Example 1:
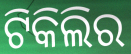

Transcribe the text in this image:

ଟିକିଲିର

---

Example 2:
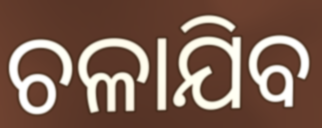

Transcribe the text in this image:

ଚଳାଯିବ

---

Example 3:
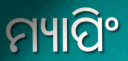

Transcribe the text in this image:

ମ୍ୟାପିଂ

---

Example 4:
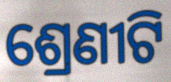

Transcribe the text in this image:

ଶ୍ରେଣୀଟି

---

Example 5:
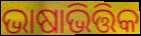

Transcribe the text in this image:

ଭାଷାଭିତ୍ତିକ